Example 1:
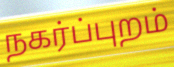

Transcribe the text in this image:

நகர்ப்புறம்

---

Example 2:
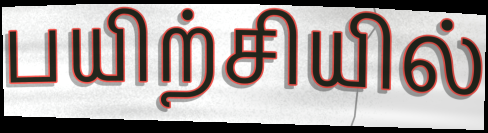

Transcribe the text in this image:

பயிற்சியில்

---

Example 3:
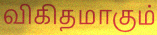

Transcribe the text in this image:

விகிதமாகும்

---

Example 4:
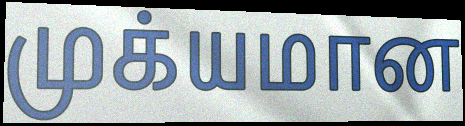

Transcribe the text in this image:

முக்யமான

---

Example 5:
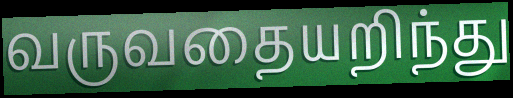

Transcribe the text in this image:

வருவதையறிந்து